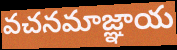
వచనమాజ్ఞాయ